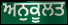
ਅਨੁਕੂਲਤ